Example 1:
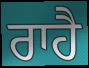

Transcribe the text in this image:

ਰਾਹੈ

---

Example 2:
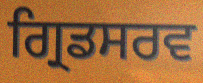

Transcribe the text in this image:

ਗ੍ਰਿਡਸਰਵ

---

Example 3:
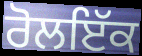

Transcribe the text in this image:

ਰੋਲਇੱਕ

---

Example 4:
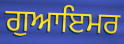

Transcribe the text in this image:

ਗੁਆਇਮਰ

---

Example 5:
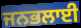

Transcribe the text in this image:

ਜਨਭਲਾਈ